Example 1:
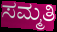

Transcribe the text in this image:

ಸಮ್ಮತಿ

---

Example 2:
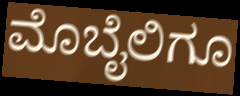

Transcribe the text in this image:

ಮೊಬೈಲಿಗೂ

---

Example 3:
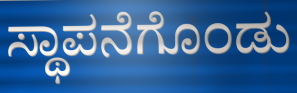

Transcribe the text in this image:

ಸ್ಥಾಪನೆಗೊಂಡು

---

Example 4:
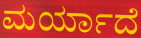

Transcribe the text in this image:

ಮರ್ಯಾದೆ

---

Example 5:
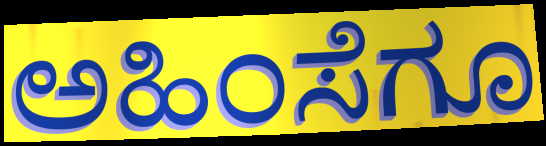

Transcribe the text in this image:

ಅಹಿಂಸೆಗೂ